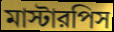
মাস্টারপিস